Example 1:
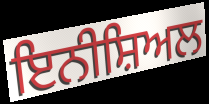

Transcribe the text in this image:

ਇਨੀਸ਼ਿਅਲ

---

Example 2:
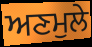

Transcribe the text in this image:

ਅਣਮੁਲੇ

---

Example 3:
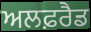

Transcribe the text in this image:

ਅਲਫ਼ਰੈਡ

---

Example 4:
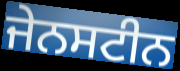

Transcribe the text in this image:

ਜੇਨਸਟੀਨ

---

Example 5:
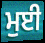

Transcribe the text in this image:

ਮੁਈ